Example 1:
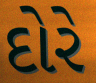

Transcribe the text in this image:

દોરે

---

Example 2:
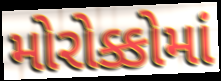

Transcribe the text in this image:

મોરોક્કોમાં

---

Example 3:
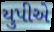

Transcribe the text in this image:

યુપીએ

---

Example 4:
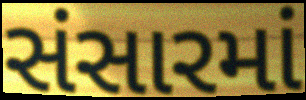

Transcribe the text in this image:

સંસારમાં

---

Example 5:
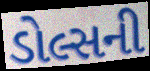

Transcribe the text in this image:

ડોલ્સની